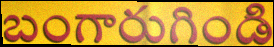
బంగారుగిండి